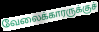
வேலைக்காரருக்குச்